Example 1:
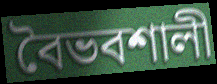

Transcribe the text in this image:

বৈভবশালী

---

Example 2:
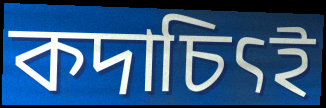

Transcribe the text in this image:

কদাচিৎই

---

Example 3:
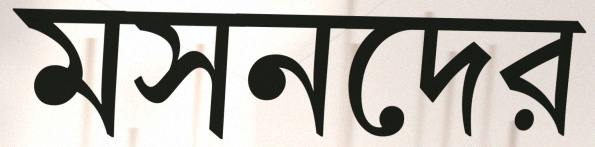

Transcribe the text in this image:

মসনদের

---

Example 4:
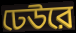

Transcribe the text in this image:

ঢেউরে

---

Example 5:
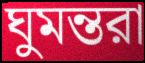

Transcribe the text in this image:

ঘুমন্তরা